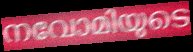
നവോമിയുടെ